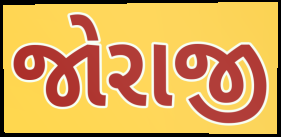
જોરાજી